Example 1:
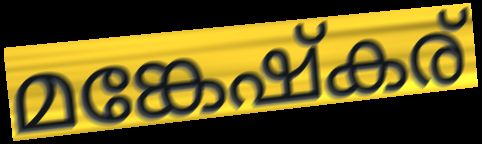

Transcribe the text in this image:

മങ്കേഷ്കര്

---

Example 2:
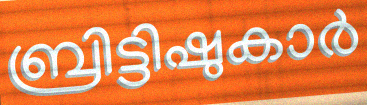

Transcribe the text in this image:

ബ്രിട്ടിഷുകാർ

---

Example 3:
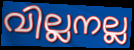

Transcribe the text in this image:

വില്ലനല്ല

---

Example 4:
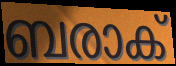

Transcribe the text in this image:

ബരാക്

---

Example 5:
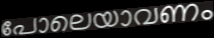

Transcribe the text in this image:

പോലെയാവണം